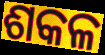
ଶକଳ